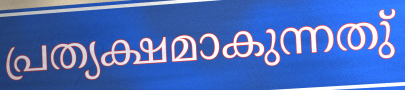
പ്രത്യക്ഷമാകുന്നതു്